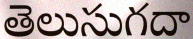
తెలుసుగదా